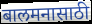
बालमनासाठी